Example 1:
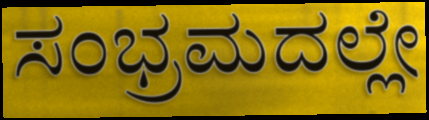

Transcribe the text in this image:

ಸಂಭ್ರಮದಲ್ಲೇ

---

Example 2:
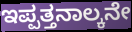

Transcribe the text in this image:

ಇಪ್ಪತ್ತನಾಲ್ಕನೇ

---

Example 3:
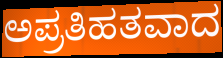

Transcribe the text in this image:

ಅಪ್ರತಿಹತವಾದ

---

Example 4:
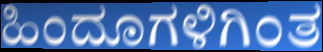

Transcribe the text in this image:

ಹಿಂದೂಗಳಿಗಿಂತ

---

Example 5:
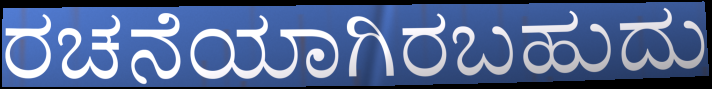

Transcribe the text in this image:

ರಚನೆಯಾಗಿರಬಹುದು